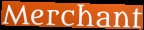
Merchant